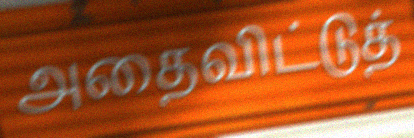
அதைவிட்டுத்